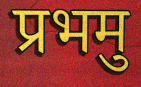
प्रभमु